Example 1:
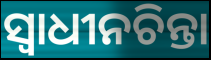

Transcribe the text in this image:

ସ୍ଵାଧୀନଚିନ୍ତା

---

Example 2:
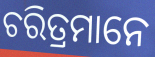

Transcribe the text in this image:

ଚରିତ୍ରମାନେ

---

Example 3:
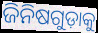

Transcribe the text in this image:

ଜିନିଷଗୁଡ଼ାକୁ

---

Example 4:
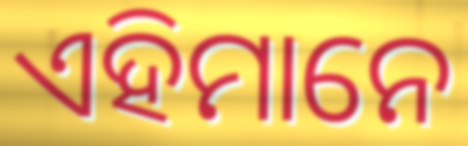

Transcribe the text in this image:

ଏହିମାନେ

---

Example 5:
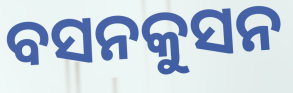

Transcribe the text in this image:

ବସନକୁସନ